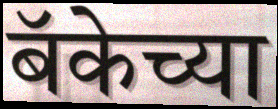
बॅकेच्या